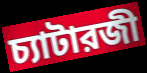
চ্যাটারজী